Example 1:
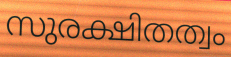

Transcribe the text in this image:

സുരക്ഷിതത്വം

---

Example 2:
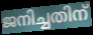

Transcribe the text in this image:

ജനിച്ചതിന്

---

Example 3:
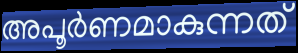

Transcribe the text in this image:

അപൂർണമാകുന്നത്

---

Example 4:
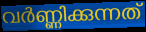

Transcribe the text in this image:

വർണ്ണിക്കുന്നത്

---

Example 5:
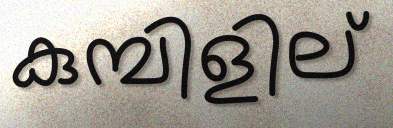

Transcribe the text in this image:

കുമ്പിളില്